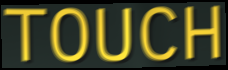
TOUCH